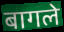
बागले